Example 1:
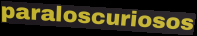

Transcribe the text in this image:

paraloscuriosos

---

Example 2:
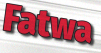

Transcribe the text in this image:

Fatwa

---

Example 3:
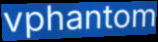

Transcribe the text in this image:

vphantom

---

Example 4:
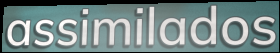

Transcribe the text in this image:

assimilados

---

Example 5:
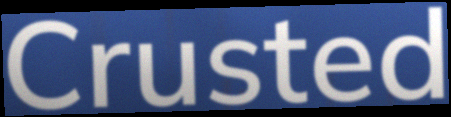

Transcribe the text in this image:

Crusted